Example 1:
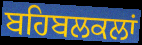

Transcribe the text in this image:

ਬਹਿਬਲਕਲਾਂ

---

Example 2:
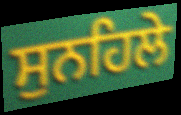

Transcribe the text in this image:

ਸੁਨਹਿਲੇ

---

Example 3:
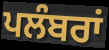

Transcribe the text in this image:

ਪਲੰਬਰਾਂ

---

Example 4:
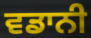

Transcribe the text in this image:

ਵਡਾਨੀ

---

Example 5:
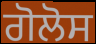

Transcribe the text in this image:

ਗੋਲੋਸ